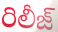
రిలీజ్